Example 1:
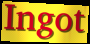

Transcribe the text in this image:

Ingot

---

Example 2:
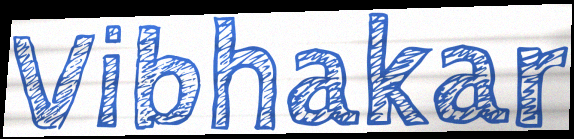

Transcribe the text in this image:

Vibhakar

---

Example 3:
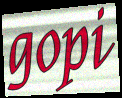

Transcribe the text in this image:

gopi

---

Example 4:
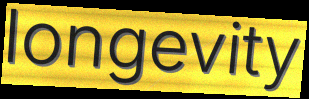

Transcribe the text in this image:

longevity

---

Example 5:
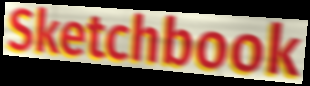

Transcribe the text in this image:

Sketchbook